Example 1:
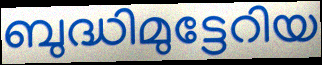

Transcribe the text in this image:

ബുദ്ധിമുട്ടേറിയ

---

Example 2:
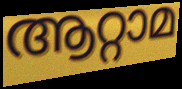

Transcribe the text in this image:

ആറ്റാമ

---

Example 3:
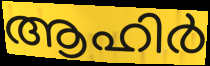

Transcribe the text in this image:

ആഹിർ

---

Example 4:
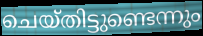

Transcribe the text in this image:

ചെയ്തിട്ടുണ്ടെന്നും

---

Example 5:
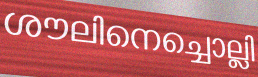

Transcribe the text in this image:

ശൗലിനെച്ചൊല്ലി